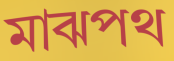
মাঝপথ